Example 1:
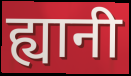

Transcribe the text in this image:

ह्यानी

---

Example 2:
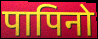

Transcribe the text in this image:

पापिनो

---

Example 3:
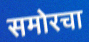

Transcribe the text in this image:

समोरचा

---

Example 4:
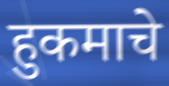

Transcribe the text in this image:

हुकमाचे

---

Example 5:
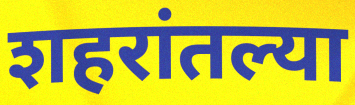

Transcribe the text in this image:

शहरांतल्या